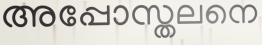
അപ്പോസ്തലനെ